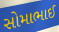
સોમાભાઈ